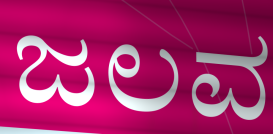
ಜಲವ